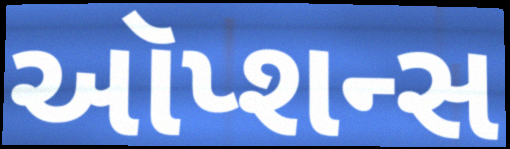
ઑપ્શન્સ